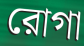
রোগা